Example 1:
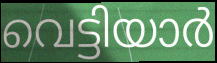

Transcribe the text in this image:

വെട്ടിയാർ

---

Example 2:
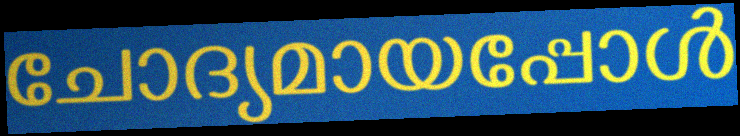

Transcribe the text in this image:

ചോദ്യമായപ്പോൾ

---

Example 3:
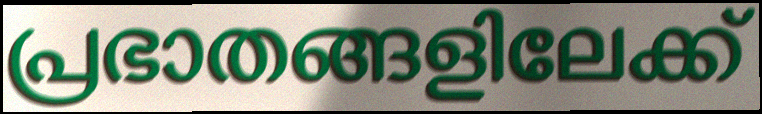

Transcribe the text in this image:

പ്രഭാതങ്ങളിലേക്ക്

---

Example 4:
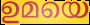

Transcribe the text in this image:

ഉമയെ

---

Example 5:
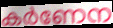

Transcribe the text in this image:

കർണേന